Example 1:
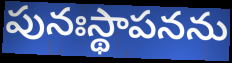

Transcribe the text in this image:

పునఃస్థాపనను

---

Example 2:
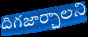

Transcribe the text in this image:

దిగజార్చాలని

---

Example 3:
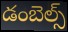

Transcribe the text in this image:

డంబెల్స్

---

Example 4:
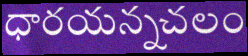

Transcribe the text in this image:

ధారయన్నచలం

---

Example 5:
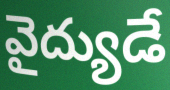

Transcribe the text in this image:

వైద్యుడే